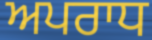
ਅਪਰਾਧ